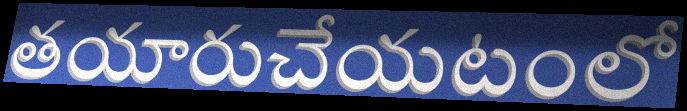
తయారుచేయటంలో